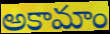
అకామాం